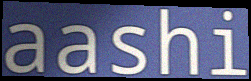
aashi